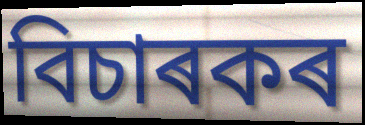
বিচাৰকৰ